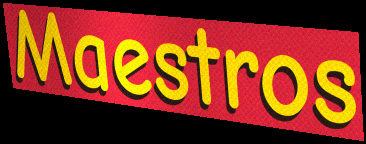
Maestros